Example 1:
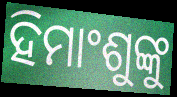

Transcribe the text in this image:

ହିମାଂଶୁଙ୍କୁ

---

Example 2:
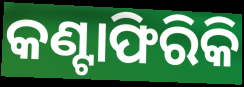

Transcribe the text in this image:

କଣ୍ଟାଫିରିକି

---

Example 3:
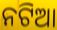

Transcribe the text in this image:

ନଟିଆ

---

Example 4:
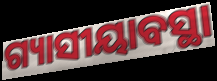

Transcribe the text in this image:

ଗ୍ୟାସୀୟାବସ୍ଥା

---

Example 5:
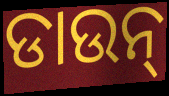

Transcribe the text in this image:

ଡାଉନ୍